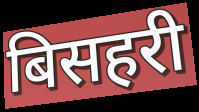
बिसहरी